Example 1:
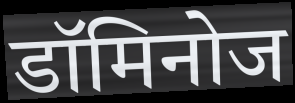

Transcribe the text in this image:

डॉमिनोज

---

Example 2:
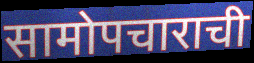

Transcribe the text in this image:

सामोपचाराची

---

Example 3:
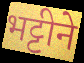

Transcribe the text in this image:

भट्टीने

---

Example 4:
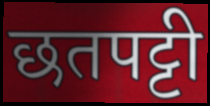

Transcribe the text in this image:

छतपट्टी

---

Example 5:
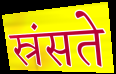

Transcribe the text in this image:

स्रंसते